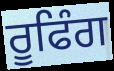
ਰੂਫਿੰਗ